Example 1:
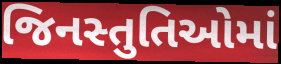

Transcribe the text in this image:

જિનસ્તુતિઓમાં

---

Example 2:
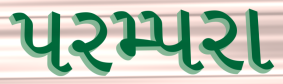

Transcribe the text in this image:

પરમ્પરા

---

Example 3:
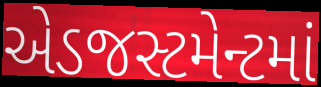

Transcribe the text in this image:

એડજસ્ટમેન્ટમાં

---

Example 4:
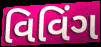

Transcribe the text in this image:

વિવિંગ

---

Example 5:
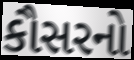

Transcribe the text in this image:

કૌસરનો